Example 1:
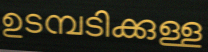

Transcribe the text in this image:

ഉടമ്പടിക്കുള്ള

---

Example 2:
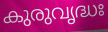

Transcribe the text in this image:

കുരുവൃദ്ധഃ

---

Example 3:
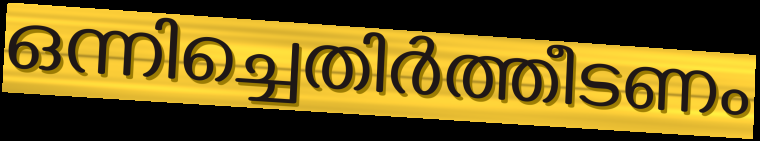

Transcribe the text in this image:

ഒന്നിച്ചെതിർത്തീടണം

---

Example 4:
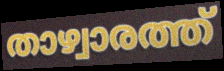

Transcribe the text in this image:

താഴ്വാരത്ത്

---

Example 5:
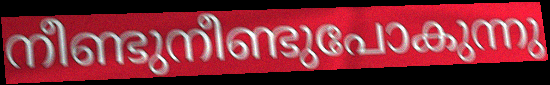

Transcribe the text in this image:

നീണ്ടുനീണ്ടുപോകുന്നു